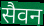
सैवन